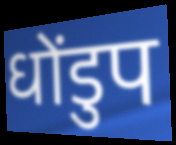
धोंडुप